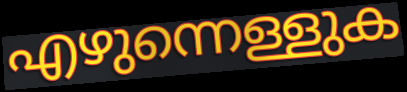
എഴുന്നെള്ളുക